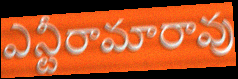
ఎన్టీరామారావు